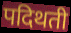
पदिथती